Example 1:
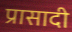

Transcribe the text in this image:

प्रासादी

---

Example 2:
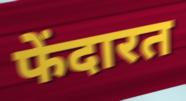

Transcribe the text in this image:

फेंदारत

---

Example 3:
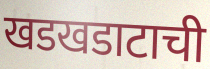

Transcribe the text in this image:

खडखडाटाची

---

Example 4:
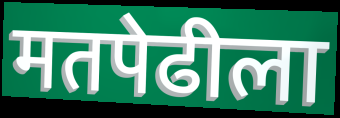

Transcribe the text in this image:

मतपेढीला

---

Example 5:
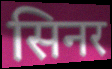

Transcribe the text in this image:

सिनर